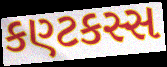
કણ્ટકસ્સ